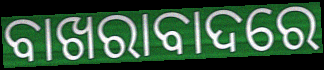
ବାଖରାବାଦରେ